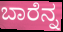
ಬಾರೆನ್ನ